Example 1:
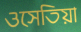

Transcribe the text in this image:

ওসেতিয়া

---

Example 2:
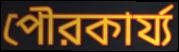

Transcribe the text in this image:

পৌরকার্য্য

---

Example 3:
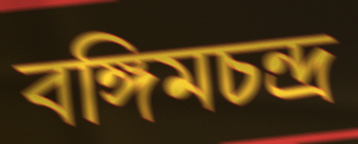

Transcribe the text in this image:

বঙ্গিমচন্দ্র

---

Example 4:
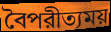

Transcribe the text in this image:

বৈপরীত্যময়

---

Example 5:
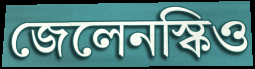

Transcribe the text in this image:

জেলেনস্কিও